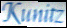
Kunitz